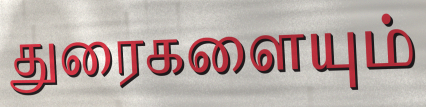
துரைகளையும்